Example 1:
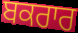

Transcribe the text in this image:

ਬਕਰਾਰ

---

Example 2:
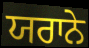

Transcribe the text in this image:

ਯਰਾਨੇ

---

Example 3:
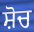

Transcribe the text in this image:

ਸ਼ੋਚ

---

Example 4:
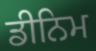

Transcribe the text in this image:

ਡੀਨਿਮ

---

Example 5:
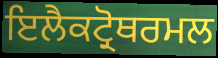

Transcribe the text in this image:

ਇਲੈਕਟ੍ਰੋਥਰਮਲ